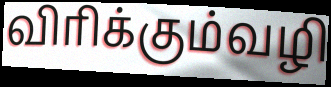
விரிக்கும்வழி